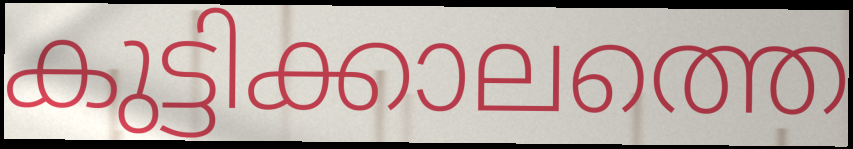
കുട്ടിക്കാലത്തെ